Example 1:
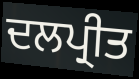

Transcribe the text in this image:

ਦਲਪ੍ਰੀਤ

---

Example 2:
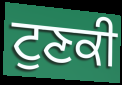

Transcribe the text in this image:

ਟੁਣਕੀ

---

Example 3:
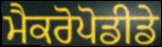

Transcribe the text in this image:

ਮੈਕਰੋਪੋਡੀਡੇ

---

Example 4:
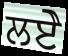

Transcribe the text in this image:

ਲਏੇ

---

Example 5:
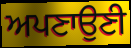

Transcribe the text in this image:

ਅਪਣਾਉਣੀ